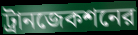
ট্রানজেকশনের